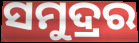
ସମୁଦ୍ରର